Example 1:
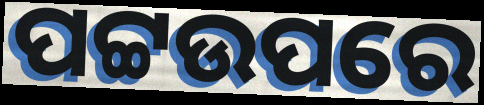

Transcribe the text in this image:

ପଟ୍ଟଉପରେ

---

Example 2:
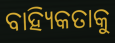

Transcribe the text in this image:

ବାହ୍ୟିକତାକୁ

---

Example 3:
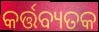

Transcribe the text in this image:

କର୍ତ୍ତବ୍ୟତକ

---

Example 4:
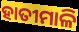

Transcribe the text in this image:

ହାତୀମାଳି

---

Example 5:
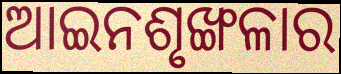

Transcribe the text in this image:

ଆଇନଶୃଙ୍ଖଳାର